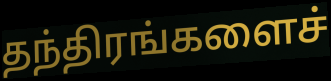
தந்திரங்களைச்